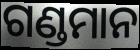
ଗଣ୍ଡମାନ